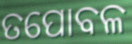
ତପୋବଳ